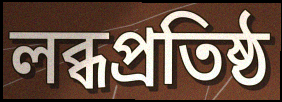
লব্ধপ্রতিষ্ঠ